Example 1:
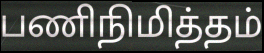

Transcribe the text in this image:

பணிநிமித்தம்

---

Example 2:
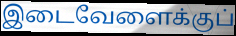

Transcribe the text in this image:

இடைவேளைக்குப்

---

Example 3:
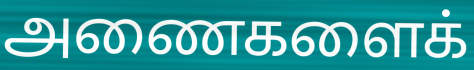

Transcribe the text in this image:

அணைகளைக்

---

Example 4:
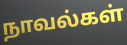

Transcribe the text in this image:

நாவல்கள்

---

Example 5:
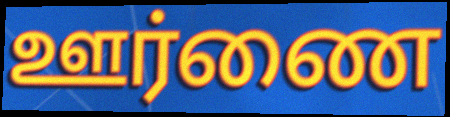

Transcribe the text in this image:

ஊர்ணை